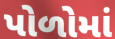
પોળોમાં